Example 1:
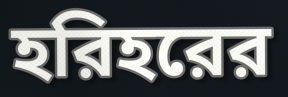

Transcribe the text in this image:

হরিহরের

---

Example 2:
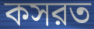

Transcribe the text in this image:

কসরত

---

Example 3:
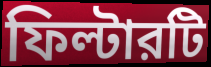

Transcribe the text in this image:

ফিল্টারটি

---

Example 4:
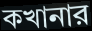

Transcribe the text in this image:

কখানার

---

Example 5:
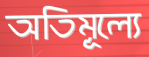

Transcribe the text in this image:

অতিমূল্যে